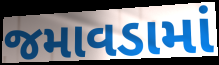
જમાવડામાં